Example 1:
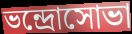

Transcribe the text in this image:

ভন্দ্রোসোভা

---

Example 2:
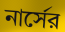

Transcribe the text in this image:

নার্সের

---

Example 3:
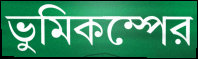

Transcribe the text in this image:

ভুমিকম্পের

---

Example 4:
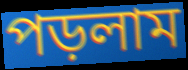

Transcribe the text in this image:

পড়লাম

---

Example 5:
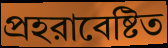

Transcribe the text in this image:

প্রহরাবেষ্টিত